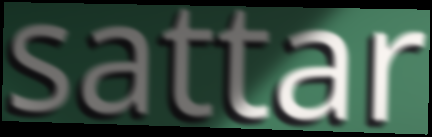
sattar